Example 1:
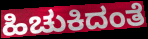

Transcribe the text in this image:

ಹಿಚುಕಿದಂತೆ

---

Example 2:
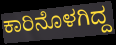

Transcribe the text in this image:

ಕಾರಿನೊಳಗಿದ್ದ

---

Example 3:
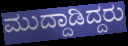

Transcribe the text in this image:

ಮುದ್ದಾಡಿದ್ದರು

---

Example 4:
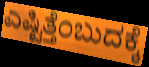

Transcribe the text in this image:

ಎಷ್ಟಿತ್ತೆಂಬುದಕ್ಕೆ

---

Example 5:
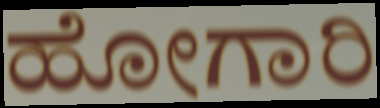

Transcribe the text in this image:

ಹೋಗಾರಿ